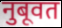
नुबूवत